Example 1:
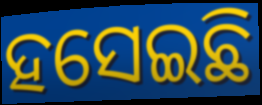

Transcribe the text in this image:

ହସେଇଛି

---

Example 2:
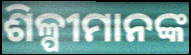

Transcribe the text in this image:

ଶିଳ୍ପୀମାନଙ୍କ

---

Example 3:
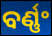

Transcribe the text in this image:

ବର୍ଣ୍ଣଂ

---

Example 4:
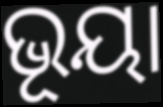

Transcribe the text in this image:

ଭୂୟା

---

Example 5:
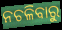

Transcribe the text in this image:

ନଚଳିବାରୁ